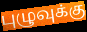
புழுவுக்கு